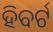
ହିବର୍ଟ